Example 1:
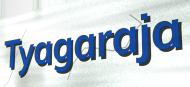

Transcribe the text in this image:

Tyagaraja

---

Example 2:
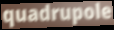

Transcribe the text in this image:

quadrupole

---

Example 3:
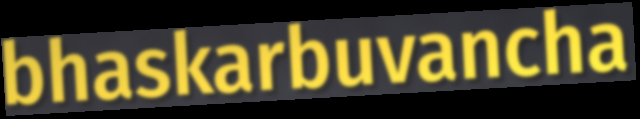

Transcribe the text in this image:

bhaskarbuvancha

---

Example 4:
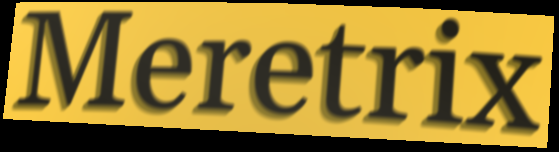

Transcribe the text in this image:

Meretrix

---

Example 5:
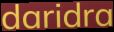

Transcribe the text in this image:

daridra